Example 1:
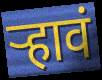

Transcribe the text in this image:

र्‍हावं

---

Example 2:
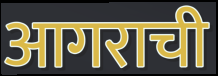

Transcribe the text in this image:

आगराची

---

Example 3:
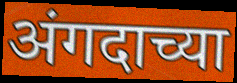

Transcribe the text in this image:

अंगदाच्या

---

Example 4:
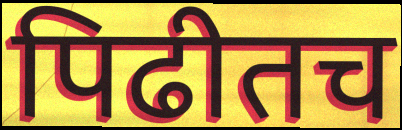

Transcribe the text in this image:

पिढीतच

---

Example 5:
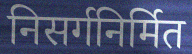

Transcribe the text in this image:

निसर्गनिर्मित